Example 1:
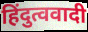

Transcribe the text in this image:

हिंदुत्ववादी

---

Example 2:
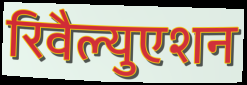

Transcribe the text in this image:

रिवैल्युएशन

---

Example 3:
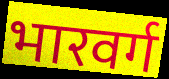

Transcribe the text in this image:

भारवर्ग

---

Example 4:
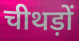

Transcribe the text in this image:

चीथड़ों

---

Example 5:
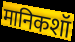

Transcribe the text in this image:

मानिकशॉ